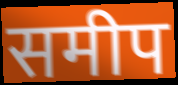
समीप